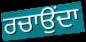
ਰਚਾਉਂਦਾ